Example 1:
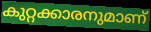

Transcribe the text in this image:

കുറ്റക്കാരനുമാണ്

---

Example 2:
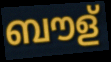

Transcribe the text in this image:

ബൗള്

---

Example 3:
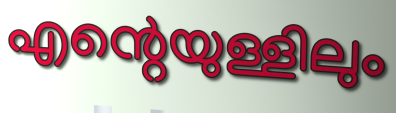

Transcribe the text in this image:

എന്റെയുള്ളിലും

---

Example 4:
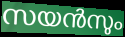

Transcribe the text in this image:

സയൻസും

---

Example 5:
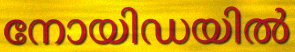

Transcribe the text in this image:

നോയിഡയിൽ